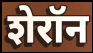
शेरॉन